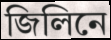
জিলিনে